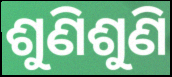
ଶୁଣିଶୁଣି